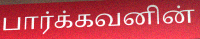
பார்க்கவனின்